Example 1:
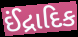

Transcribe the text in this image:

ઈંદ્રાદિક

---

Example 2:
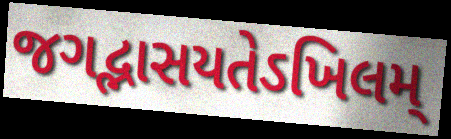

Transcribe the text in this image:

જગદ્ભાસયતેઽખિલમ્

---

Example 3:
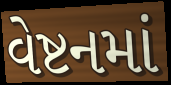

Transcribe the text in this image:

વેષ્ટનમાં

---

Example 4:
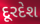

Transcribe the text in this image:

દૂરદેશ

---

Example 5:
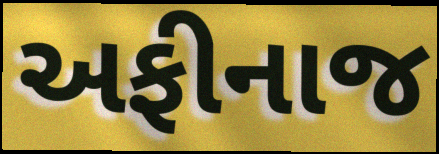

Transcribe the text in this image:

અફીનાજ